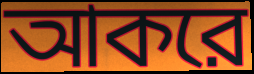
আকরে